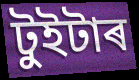
টুইটাৰ